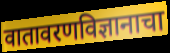
वातावरणविज्ञानाचा